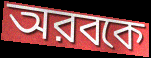
অরবকে